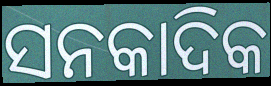
ସନକାଦିକ